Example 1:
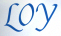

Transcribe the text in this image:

LOY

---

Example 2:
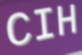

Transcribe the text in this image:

CIH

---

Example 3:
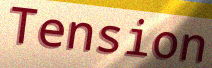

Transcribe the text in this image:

Tension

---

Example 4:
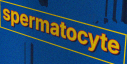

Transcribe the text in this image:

spermatocyte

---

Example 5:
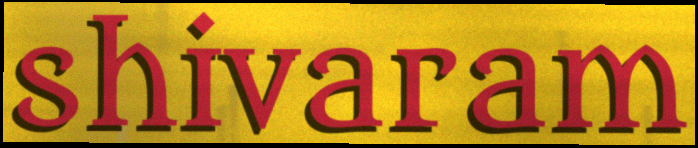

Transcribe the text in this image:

shivaram